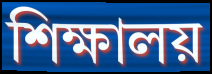
শিক্ষালয়